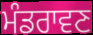
ਮੰਡਰਾਵਣ